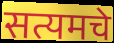
सत्यमचे